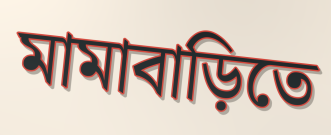
মামাবাড়িতে